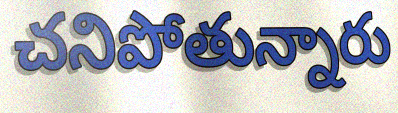
చనిపోతున్నారు